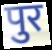
पुर